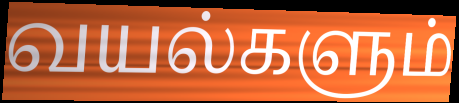
வயல்களும்